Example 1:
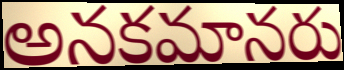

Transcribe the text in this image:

అనకమానరు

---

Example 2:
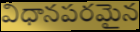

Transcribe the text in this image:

విధానపరమైన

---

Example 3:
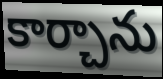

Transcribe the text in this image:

కార్చాను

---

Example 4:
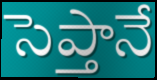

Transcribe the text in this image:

సెప్తానే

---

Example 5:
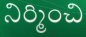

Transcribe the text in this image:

నిర్మించి